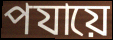
পযায়ে